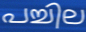
പച്ചില